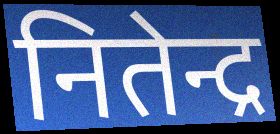
नितेन्द्र